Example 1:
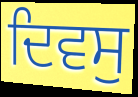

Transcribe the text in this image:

ਦਿਵਸੁ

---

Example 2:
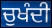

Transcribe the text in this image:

ਚੁਖੰਦੀ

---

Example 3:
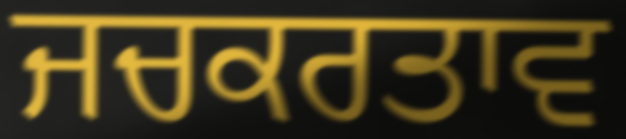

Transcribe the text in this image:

ਜਚਕਰਤਾਵ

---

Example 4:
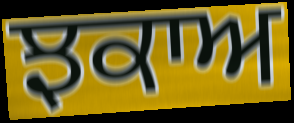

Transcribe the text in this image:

ਝਕਾਅ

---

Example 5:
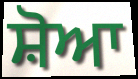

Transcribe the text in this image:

ਸ਼ੋਆ